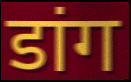
डांग